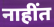
नाहींत